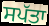
ਸਪੱਤਾ